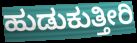
ಹುಡುಕುತ್ತೀರಿ